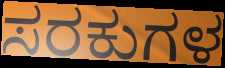
ಸರಕುಗಳ